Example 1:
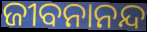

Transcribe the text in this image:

ଜୀବନାନନ୍ଦ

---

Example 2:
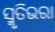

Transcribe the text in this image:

ସ୍ମୃତିଭରା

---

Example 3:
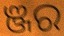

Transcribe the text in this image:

ଞ୍ଜର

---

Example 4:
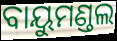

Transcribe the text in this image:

ବାୟୁମଣ୍ଡଲ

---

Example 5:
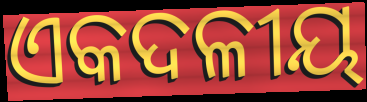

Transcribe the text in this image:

ଏକଦଳୀୟ